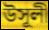
উসূলী